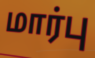
மார்பு